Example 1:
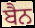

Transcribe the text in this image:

ਬੈਨ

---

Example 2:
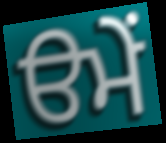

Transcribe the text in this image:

ੳਮੇਂ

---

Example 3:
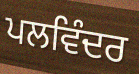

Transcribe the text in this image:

ਪਲਵਿੰਦਰ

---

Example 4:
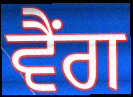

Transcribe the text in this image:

ਵੈਂਗ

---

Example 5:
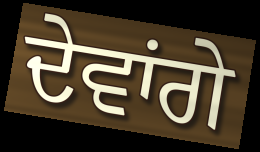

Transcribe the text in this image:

ਦੇਵਾਂਗੇ